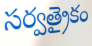
సర్వత్రైకం